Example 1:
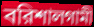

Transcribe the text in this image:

বরিশালগামী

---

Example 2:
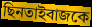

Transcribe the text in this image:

ছিনতাইবাজকে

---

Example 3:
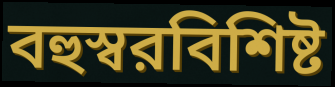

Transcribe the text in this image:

বহুস্বরবিশিষ্ট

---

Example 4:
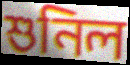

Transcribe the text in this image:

শুনিল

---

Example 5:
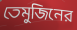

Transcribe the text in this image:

তেমুজিনের